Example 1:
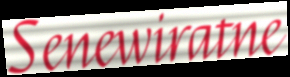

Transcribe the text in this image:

Senewiratne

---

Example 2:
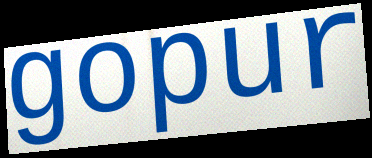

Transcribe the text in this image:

gopur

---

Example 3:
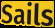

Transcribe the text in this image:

Sails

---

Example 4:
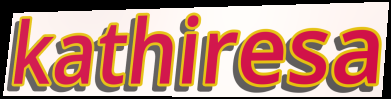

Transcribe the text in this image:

kathiresa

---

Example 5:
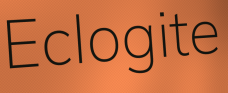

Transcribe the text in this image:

Eclogite